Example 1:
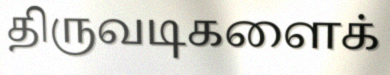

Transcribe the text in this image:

திருவடிகளைக்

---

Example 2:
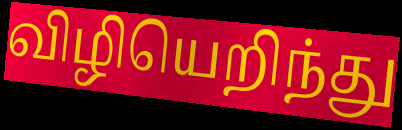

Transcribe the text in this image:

விழியெறிந்து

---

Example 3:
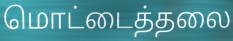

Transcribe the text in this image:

மொட்டைத்தலை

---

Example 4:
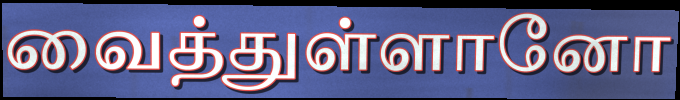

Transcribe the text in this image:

வைத்துள்ளானோ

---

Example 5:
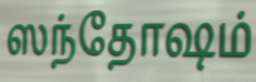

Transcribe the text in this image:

ஸந்தோஷம்